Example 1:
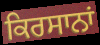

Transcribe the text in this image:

ਕਿਰਸਾਨਾਂ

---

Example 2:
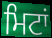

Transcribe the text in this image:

ਮਿਟਾਂ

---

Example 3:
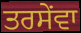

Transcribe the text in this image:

ਤਰਸੇਂਵਾ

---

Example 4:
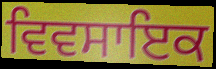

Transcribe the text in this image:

ਵਿਵਸਾਇਕ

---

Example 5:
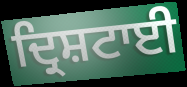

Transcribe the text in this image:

ਦ੍ਰਿਸ਼ਟਾਈ